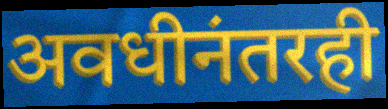
अवधीनंतरही